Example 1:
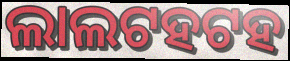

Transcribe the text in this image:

ଲାଲଟହଟହ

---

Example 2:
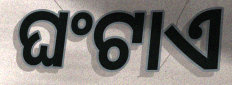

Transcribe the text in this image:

ଘଂଟାଏ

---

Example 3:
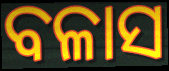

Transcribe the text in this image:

ବଳାସ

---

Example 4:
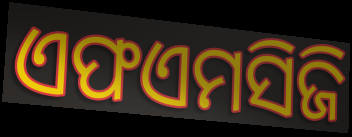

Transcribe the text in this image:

ଏଫଏମସିଜି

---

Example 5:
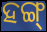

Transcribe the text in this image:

ହଙ୍ଗ୍